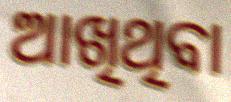
ଆଖିଥିବା